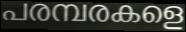
പരമ്പരകളെ